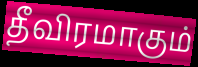
தீவிரமாகும்